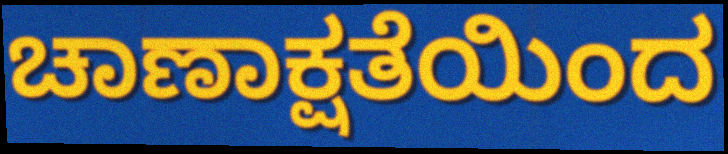
ಚಾಣಾಕ್ಷತೆಯಿಂದ